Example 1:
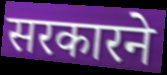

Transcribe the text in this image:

सरकारने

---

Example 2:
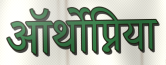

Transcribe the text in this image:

ऑर्थोप्निया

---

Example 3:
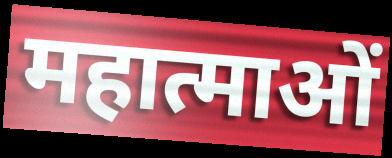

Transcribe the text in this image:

महात्माओं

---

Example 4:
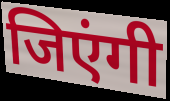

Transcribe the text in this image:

जिएंगी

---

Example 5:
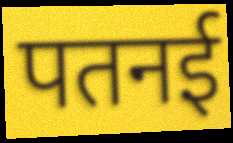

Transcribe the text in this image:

पतनई